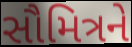
સૌમિત્રને